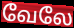
வேலே